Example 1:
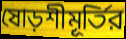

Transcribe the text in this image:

ষোড়শীমূর্তির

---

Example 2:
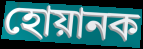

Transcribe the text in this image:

হোয়ানক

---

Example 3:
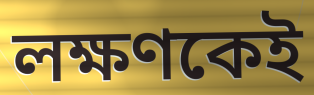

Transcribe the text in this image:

লক্ষণকেই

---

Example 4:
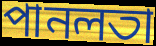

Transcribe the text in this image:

পানলতা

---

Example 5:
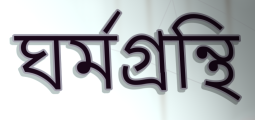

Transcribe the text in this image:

ঘর্মগ্রন্থি